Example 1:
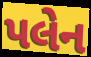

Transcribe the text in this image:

પલેન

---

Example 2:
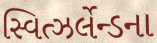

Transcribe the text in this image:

સ્વિત્ઝર્લેન્ડના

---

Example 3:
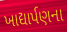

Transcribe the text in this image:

ખાદ્યાર્પણના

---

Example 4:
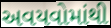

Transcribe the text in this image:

અવયવોમાંથી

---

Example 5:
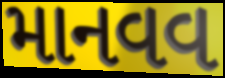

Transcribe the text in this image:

માનવવ